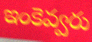
ఇంకెవ్వరు